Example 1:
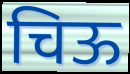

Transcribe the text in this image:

चिऊ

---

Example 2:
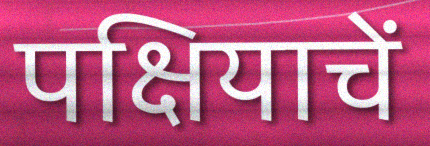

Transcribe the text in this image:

पक्षियाचें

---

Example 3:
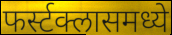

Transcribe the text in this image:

फर्स्टक्लासमध्ये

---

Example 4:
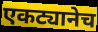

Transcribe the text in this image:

एकट्यानेच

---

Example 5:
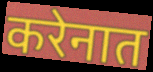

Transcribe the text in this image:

करेनात